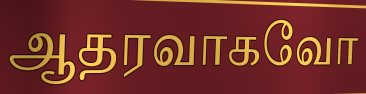
ஆதரவாகவோ